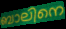
ബാലിനെ